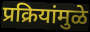
प्रक्रियांमुळे